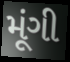
મૂંગી